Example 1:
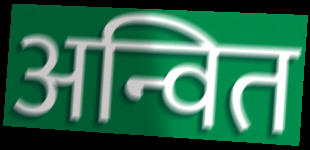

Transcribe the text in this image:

अन्वित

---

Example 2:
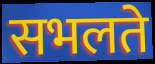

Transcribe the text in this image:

सभलते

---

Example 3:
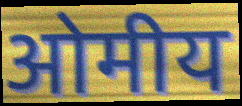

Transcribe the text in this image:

ओमीय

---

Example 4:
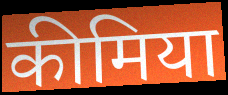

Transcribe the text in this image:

कीमिया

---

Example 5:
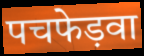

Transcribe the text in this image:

पचफेड़वा